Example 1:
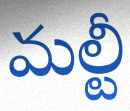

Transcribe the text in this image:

మల్టీ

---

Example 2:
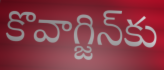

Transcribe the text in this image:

కొవాగ్జిన్‌కు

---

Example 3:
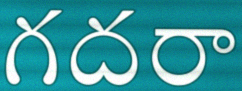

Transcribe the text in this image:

గదరా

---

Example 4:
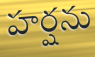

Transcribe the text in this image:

హర్షను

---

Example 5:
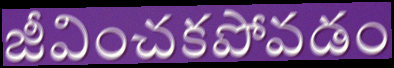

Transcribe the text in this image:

జీవించకపోవడం